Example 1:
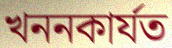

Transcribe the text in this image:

খননকাৰ্যত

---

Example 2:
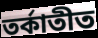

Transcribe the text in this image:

তৰ্কাতীত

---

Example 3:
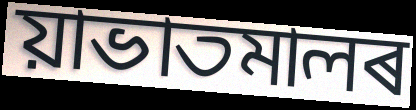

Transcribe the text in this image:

য়াভাতমালৰ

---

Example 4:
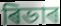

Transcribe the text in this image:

ৰিভাৰ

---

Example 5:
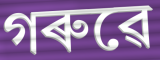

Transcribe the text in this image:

গৰুৱে